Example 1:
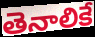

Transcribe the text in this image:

తెనాలికే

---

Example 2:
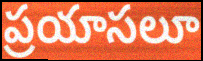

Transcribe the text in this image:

ప్రయాసలూ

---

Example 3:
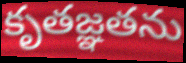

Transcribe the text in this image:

కృతజ్ఞతను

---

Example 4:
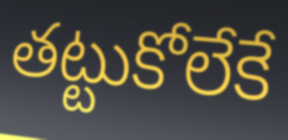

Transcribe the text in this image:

తట్టుకోలేకే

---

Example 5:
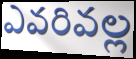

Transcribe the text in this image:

ఎవరివల్ల